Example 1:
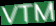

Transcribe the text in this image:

VTM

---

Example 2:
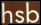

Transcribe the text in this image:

hsb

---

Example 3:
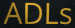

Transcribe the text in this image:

ADLs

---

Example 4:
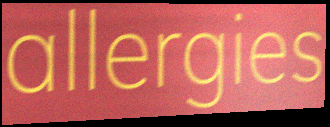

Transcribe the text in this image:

allergies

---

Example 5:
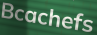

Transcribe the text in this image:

Bcachefs